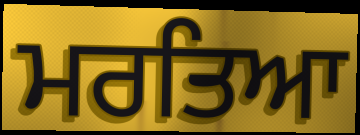
ਮਰਤਿਆ